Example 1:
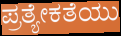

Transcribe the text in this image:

ಪ್ರತ್ಯೇಕತೆಯು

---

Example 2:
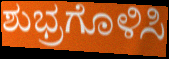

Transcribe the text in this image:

ಶುಭ್ರಗೊಳಿಸಿ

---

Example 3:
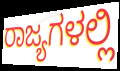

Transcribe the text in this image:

ರಾಜ್ಯಗಳಲ್ಲಿ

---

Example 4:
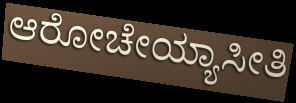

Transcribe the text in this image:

ಆರೋಚೇಯ್ಯಾಸೀತಿ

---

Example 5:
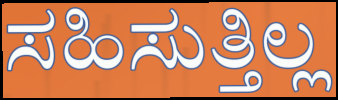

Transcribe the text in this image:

ಸಹಿಸುತ್ತಿಲ್ಲ